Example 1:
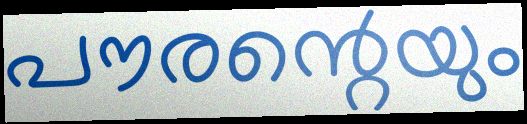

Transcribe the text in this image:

പൗരന്റെയും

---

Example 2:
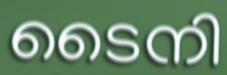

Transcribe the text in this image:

ടൈനി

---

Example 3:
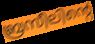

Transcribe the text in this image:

ബ്രസീലിന്റെ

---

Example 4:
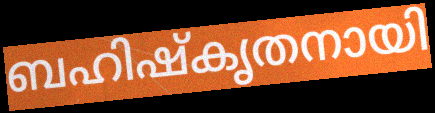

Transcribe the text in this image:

ബഹിഷ്കൃതനായി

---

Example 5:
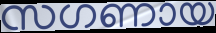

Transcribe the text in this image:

സഗണായ